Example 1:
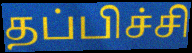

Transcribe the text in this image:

தப்பிச்சி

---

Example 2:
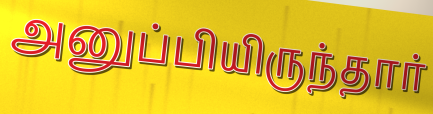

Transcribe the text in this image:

அனுப்பியிருந்தார்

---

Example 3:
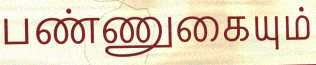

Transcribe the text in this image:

பண்ணுகையும்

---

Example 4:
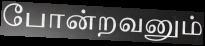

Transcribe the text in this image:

போன்றவனும்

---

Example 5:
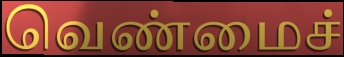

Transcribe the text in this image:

வெண்மைச்